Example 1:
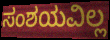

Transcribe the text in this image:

ಸಂಶಯವಿಲ್ಲ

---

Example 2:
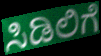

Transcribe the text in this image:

ಸಿಡಿಲಿಗೆ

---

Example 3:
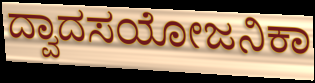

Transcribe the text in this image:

ದ್ವಾದಸಯೋಜನಿಕಾ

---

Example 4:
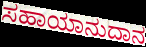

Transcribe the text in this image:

ಸಹಾಯಾನುದಾನ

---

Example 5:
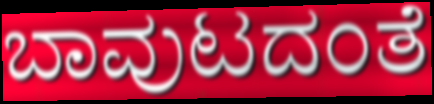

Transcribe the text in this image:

ಬಾವುಟದಂತೆ